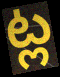
ట్ల